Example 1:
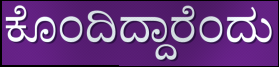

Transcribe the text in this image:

ಕೊಂದಿದ್ದಾರೆಂದು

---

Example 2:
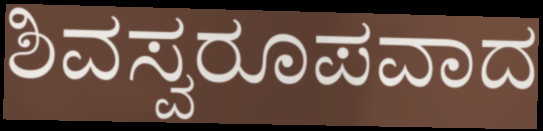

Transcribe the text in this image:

ಶಿವಸ್ವರೂಪವಾದ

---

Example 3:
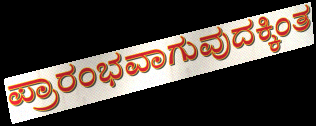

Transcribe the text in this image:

ಪ್ರಾರಂಭವಾಗುವುದಕ್ಕಿಂತ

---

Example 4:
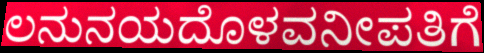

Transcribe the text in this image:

ಲನುನಯದೊಳವನೀಪತಿಗೆ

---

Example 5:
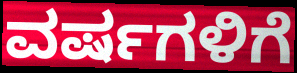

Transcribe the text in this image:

ವರ್ಷಗಳಿಗೆ